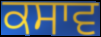
ਕਸਾਵ